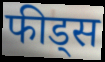
फीड्स